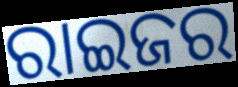
ରାଇଜର